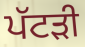
ਪੱਟੜੀ